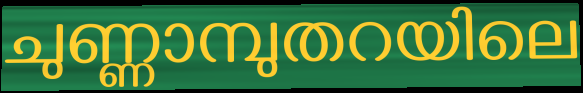
ചുണ്ണാമ്പുതറയിലെ